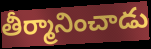
తీర్మానించాడు